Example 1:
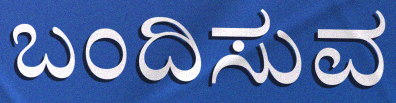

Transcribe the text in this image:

ಬಂದಿಸುವ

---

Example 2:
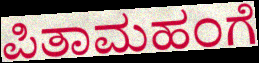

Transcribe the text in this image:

ಪಿತಾಮಹಂಗೆ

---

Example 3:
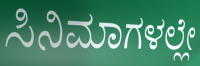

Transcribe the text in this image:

ಸಿನಿಮಾಗಳಲ್ಲೇ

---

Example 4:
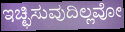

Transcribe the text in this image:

ಇಚ್ಛಿಸುವುದಿಲ್ಲವೋ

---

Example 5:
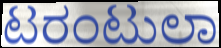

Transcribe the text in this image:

ಟರಂಟುಲಾ